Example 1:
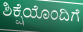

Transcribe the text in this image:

ಶಿಕ್ಷೆಯೊಂದಿಗೆ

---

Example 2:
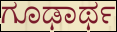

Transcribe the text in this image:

ಗೂಢಾರ್ಥ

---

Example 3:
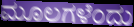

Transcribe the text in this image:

ಮೂಲಗಳೆಂದು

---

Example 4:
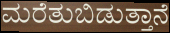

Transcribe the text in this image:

ಮರೆತುಬಿಡುತ್ತಾನೆ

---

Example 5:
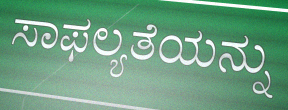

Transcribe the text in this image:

ಸಾಫಲ್ಯತೆಯನ್ನು